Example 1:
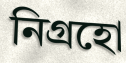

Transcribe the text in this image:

নিগ্রহো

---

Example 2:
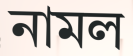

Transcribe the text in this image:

নামল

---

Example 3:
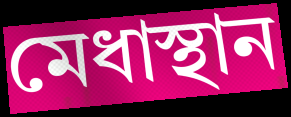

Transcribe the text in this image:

মেধাস্থান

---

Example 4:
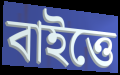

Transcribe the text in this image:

বাইত্তে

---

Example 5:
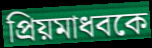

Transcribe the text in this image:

প্রিয়মাধবকে